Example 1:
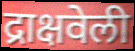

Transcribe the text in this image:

द्राक्षवेली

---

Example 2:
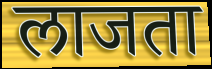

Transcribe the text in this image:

लाजता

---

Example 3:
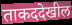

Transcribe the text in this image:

ताकददेखील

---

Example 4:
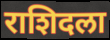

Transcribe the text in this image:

राशिदला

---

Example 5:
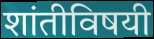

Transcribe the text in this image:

शांतीविषयी